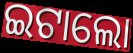
ଇଟାଲୋ